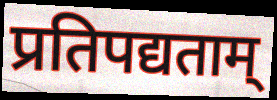
प्रतिपद्यताम्